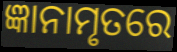
ଜ୍ଞାନାମୃତରେ